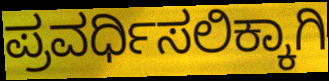
ಪ್ರವರ್ಧಿಸಲಿಕ್ಕಾಗಿ